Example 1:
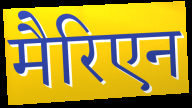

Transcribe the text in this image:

मैरिएन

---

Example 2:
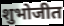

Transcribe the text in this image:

शुभोजीत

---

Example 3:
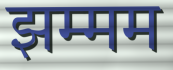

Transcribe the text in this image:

झम्मम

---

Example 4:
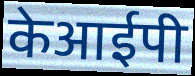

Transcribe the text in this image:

केआईपी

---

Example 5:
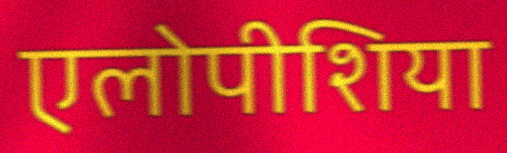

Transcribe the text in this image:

एलोपीशिया